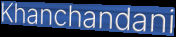
Khanchandani